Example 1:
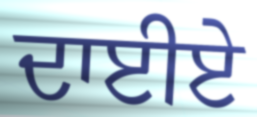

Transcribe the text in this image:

ਦਾਈਏ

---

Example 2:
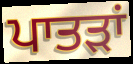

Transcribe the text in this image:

ਪਾਤੜਾਂ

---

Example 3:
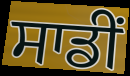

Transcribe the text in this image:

ਸਾਡੀਂ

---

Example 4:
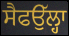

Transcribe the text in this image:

ਸੈਫਉੱਲ੍ਹਾ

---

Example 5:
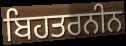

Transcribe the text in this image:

ਬਿਹਤਰਨੀਨ